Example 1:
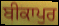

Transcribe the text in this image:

ਬੀਕਾਪੁਰ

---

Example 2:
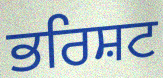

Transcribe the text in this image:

ਭਰਿਸ਼ਟ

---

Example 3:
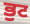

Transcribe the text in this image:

ਭੁਟ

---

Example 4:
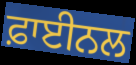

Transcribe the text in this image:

ਫ਼ਾਈਨਲ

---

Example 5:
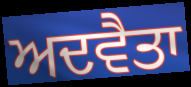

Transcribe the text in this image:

ਅਦਵੈਤਾ